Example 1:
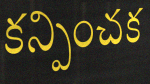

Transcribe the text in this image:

కన్పించక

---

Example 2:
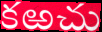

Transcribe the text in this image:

కఱచు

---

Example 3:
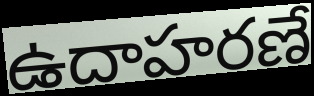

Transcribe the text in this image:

ఉదాహరణే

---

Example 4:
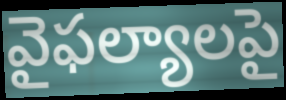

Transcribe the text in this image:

వైఫల్యాలపై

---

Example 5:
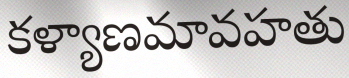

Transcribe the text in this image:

కళ్యాణమావహతు